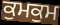
ਕੁਮਕੁਮ